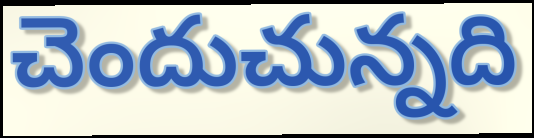
చెందుచున్నది